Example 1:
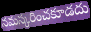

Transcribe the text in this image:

నమస్కరించకూడదు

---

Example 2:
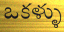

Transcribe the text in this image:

ఒకళ్ళు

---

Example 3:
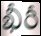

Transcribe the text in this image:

ఖీరీ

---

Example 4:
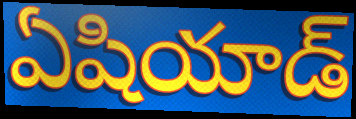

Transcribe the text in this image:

ఏషియాడ్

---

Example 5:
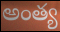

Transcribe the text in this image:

అంత్య